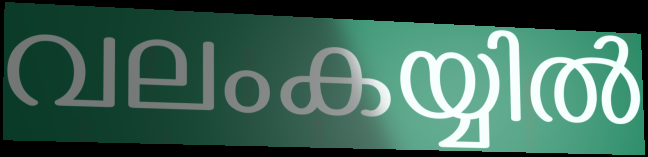
വലംകയ്യിൽ